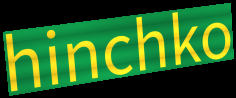
hinchko